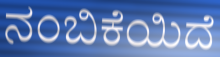
ನಂಬಿಕೆಯಿದೆ